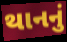
થાનનું